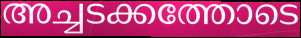
അച്ചടക്കത്തോടെ